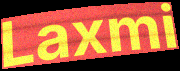
Laxmi